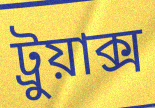
ট্রুয়াক্স